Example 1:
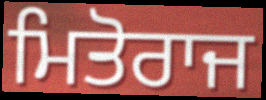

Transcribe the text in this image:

ਮਿਤੋਰਾਜ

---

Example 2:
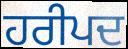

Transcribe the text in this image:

ਹਰੀਪਦ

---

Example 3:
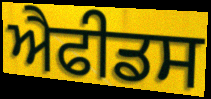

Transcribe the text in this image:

ਐਫੀਡਸ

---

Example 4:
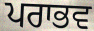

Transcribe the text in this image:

ਪਰਾਭਵ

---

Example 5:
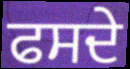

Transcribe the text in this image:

ਫਸਦੇ